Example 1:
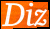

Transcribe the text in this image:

Diz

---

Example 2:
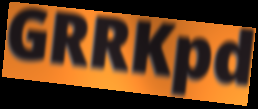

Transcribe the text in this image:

GRRKpd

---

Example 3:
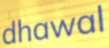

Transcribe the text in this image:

dhawal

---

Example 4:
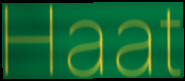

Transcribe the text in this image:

Haat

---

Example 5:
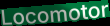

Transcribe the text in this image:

Locomotor